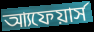
আ্যফেয়ার্স